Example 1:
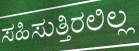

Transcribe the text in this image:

ಸಹಿಸುತ್ತಿರಲಿಲ್ಲ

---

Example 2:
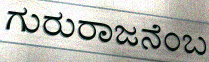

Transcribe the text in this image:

ಗುರುರಾಜನೆಂಬ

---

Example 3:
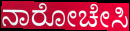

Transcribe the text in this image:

ನಾರೋಚೇಸಿ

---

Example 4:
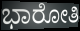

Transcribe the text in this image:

ಭಾರೋತಿ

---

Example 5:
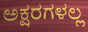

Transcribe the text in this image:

ಅಕ್ಷರಗಳಲ್ಲ